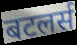
बटलर्स